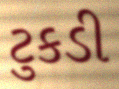
ટુકડી